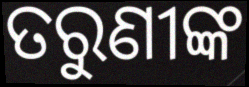
ତରୁଣୀଙ୍କ